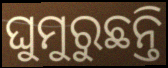
ଘୁମୁରୁଛନ୍ତି